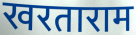
खरताराम